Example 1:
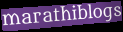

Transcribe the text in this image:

marathiblogs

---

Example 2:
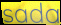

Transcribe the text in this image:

sada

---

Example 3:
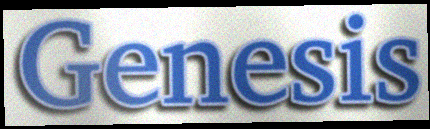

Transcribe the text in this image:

Genesis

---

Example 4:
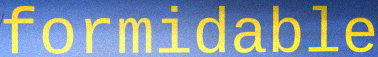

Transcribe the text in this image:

formidable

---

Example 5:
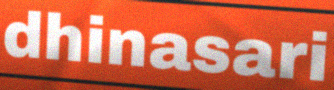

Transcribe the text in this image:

dhinasari